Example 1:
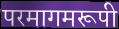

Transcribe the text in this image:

परमागमरूपी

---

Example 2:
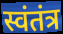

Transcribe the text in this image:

स्वंतंत्र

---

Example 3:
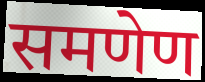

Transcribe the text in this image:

समणेण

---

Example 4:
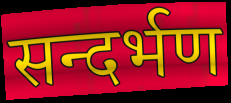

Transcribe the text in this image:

सन्दर्भण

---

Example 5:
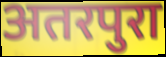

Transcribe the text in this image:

अतरपुरा